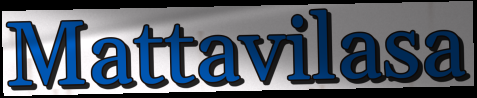
Mattavilasa